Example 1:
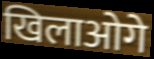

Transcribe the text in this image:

खिलाओगे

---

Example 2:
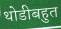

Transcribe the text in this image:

थोडीबहुत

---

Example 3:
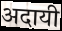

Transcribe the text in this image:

अदायी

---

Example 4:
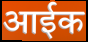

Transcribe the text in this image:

आईक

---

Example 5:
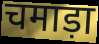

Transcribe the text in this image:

चमाड़ा